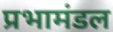
प्रभामंडल